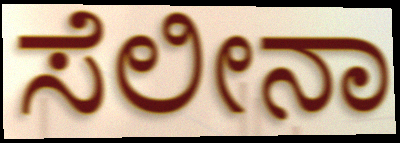
ಸೆಲೀನಾ